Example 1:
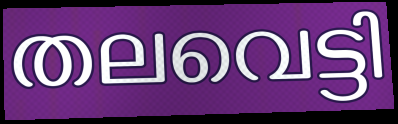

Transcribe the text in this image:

തലവെട്ടി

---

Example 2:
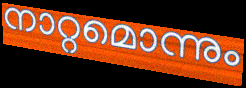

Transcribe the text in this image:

നാറ്റമൊന്നും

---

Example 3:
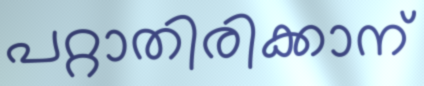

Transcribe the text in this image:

പറ്റാതിരിക്കാന്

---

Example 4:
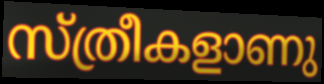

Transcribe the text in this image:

സ്ത്രീകളാണു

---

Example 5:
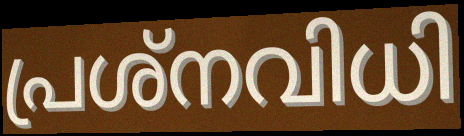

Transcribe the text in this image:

പ്രശ്നവിധി